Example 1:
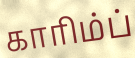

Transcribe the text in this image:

காரிம்ப்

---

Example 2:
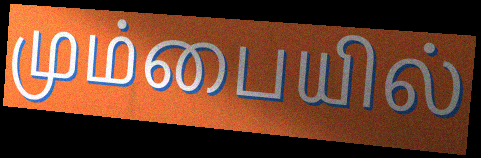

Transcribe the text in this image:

மும்பையில்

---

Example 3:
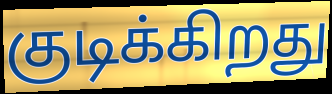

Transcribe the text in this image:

குடிக்கிறது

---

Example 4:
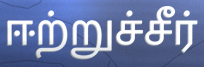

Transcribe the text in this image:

ஈற்றுச்சீர்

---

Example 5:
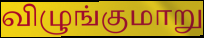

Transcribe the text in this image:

விழுங்குமாறு